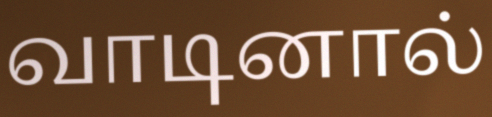
வாடினால்